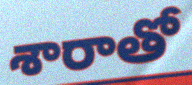
శారాతో